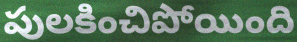
పులకించిపోయింది